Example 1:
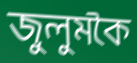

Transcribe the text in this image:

জুলুমকৈ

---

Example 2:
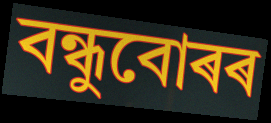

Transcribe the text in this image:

বন্ধুবোৰৰ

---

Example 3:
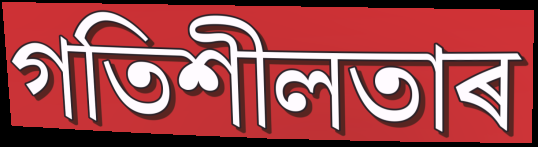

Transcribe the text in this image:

গতিশীলতাৰ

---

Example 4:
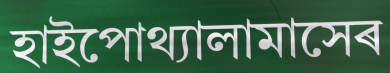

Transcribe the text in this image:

হাইপোথ্যালামাসেৰ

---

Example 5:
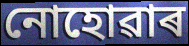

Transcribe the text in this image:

নোহোৱাৰ